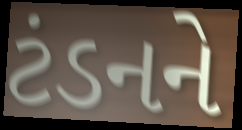
ટંડનને